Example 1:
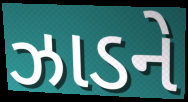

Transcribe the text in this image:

ઝાડને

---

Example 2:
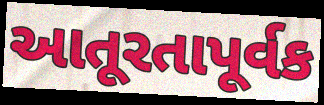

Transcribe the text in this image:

આતૂરતાપૂર્વક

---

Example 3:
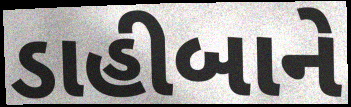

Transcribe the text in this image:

ડાહીબાને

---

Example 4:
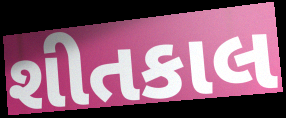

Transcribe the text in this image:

શીતકાલ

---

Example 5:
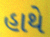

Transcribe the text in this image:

હાથે